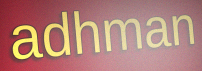
adhman